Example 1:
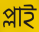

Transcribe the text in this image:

প্লাই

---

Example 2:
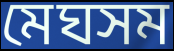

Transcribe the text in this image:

মেঘসম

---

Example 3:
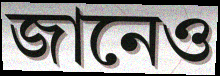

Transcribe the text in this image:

জানেও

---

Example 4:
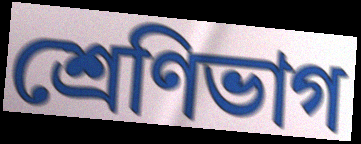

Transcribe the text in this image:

শ্রেণিভাগ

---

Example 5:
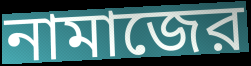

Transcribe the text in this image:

নামাজের